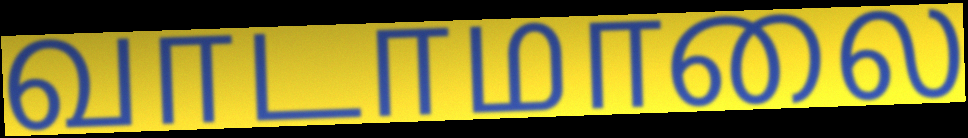
வாடாமாலை